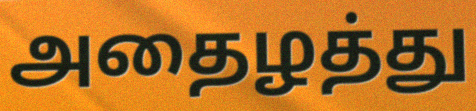
அதைழத்து